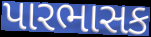
પારભાસક